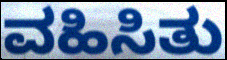
ವಹಿಸಿತು